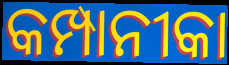
କମ୍ପାନୀକା